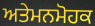
ਅਤੇਮਨਮੋਹਕ